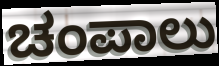
ಚಂಪಾಲು